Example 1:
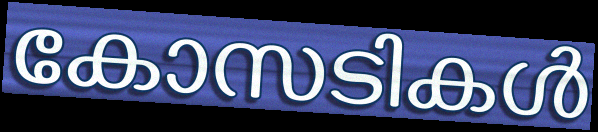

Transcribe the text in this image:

കോസടികൾ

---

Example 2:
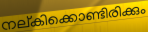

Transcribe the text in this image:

നല്കിക്കൊണ്ടിരിക്കും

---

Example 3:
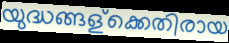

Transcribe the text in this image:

യുദ്ധങ്ങള്ക്കെതിരായ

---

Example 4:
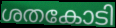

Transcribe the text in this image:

ശതകോടി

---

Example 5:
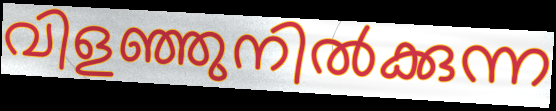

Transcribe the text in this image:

വിളഞ്ഞുനിൽക്കുന്ന